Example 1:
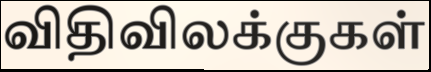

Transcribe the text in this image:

விதிவிலக்குகள்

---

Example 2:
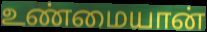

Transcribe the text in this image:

உண்மையான்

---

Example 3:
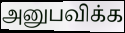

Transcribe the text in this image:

அனுபவிக்க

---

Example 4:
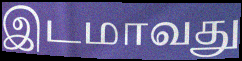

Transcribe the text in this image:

இடமாவது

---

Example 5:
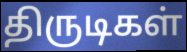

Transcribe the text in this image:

திருடிகள்